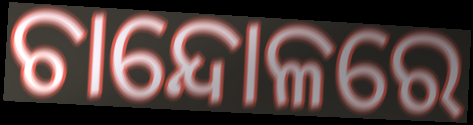
ଚାନ୍ଦୋଳରେ